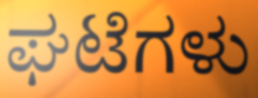
ಘಟೆಗಳು